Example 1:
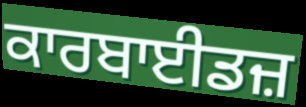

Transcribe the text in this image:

ਕਾਰਬਾਈਡਜ਼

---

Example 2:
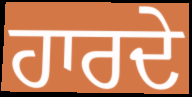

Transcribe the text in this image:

ਹਾਰਦੇ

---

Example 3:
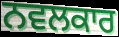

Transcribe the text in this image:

ਨਵਲਕਾਰ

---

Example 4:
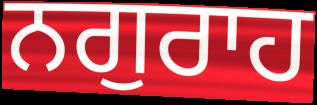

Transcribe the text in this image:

ਨਗੁਰਾਹ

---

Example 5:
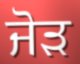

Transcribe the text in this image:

ਜੋੜ